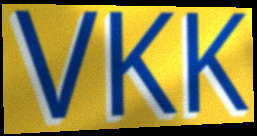
VKK